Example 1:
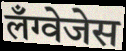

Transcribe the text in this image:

लँग्वेजेस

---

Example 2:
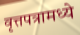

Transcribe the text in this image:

वृत्तपत्रामध्ये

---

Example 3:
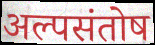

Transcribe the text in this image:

अल्पसंतोष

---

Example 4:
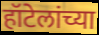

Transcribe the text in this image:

हॉटेलांच्या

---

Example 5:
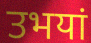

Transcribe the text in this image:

उभयां